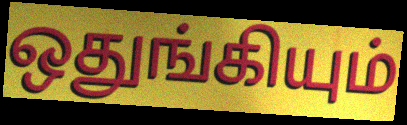
ஒதுங்கியும்